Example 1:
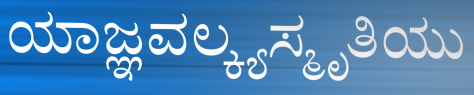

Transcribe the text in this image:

ಯಾಜ್ಞವಲ್ಕ್ಯಸ್ಮೃತಿಯು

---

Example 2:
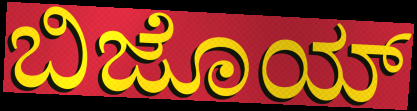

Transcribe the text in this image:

ಬಿಜೊಯ್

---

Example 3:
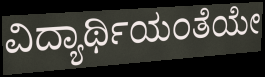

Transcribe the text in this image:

ವಿದ್ಯಾರ್ಥಿಯಂತೆಯೇ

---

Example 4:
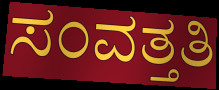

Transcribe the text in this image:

ಸಂವತ್ತತಿ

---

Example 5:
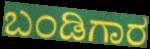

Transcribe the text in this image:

ಬಂಡಿಗಾರ